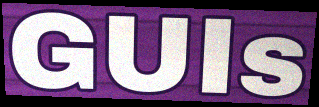
GUIs